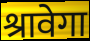
श्रावेगा